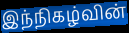
இந்நிகழ்வின்